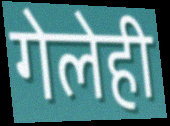
गेलेही